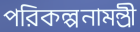
পরিকল্পনামন্ত্রী